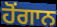
ਹੋਂਗਾਨ